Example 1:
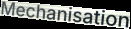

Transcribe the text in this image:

Mechanisation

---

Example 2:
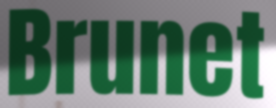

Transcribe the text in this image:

Brunet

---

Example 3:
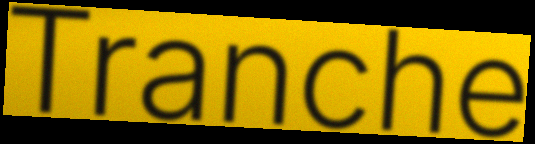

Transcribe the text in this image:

Tranche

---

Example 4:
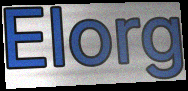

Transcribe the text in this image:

Elorg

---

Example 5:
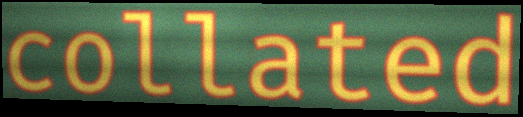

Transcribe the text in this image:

collated